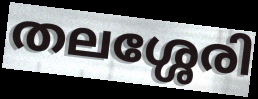
തലശ്ശേരി